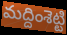
మద్దింశెట్టి